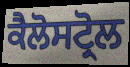
ਕੈਲੋਸਟ੍ਰੋਲ